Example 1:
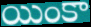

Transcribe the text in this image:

యింకా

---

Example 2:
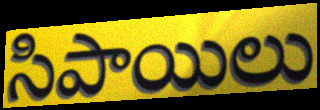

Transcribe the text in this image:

సిపాయిలు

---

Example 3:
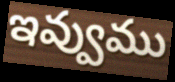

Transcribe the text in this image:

ఇవ్వుము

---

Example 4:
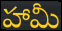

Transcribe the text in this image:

హామీ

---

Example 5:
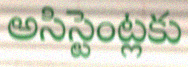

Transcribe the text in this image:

అసిస్టెంట్లకు